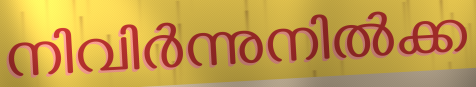
നിവിർന്നുനിൽക്ക